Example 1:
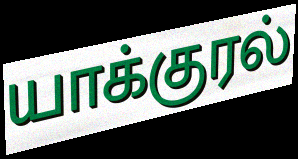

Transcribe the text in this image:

யாக்குரல்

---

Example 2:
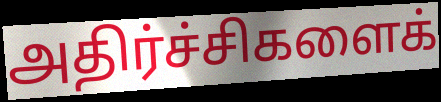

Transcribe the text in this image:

அதிர்ச்சிகளைக்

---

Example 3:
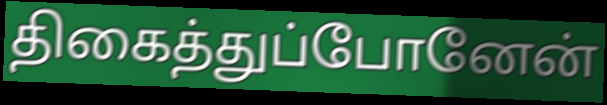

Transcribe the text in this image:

திகைத்துப்போனேன்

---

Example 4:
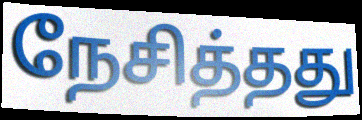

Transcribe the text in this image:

நேசித்தது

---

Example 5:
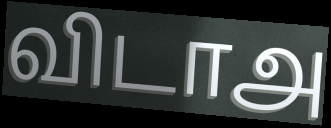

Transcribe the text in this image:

விடாஅ